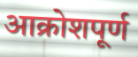
आक्रोशपूर्ण